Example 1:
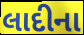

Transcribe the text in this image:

લાદીના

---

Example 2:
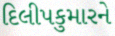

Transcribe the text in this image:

દિલીપકુમારને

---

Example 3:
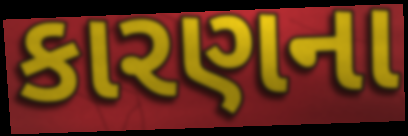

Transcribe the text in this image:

કારણના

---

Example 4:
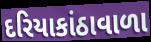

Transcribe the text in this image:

દરિયાકાંઠાવાળા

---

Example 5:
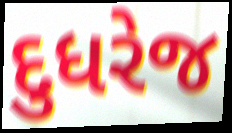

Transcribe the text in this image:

દુધરેજ